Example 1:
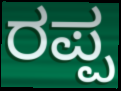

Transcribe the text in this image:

ರಪ್ಪ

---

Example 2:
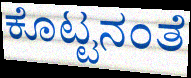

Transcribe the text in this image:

ಕೊಟ್ಟನಂತೆ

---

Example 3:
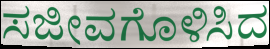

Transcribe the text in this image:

ಸಜೀವಗೊಳಿಸಿದ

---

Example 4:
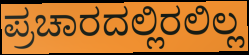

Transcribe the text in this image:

ಪ್ರಚಾರದಲ್ಲಿರಲಿಲ್ಲ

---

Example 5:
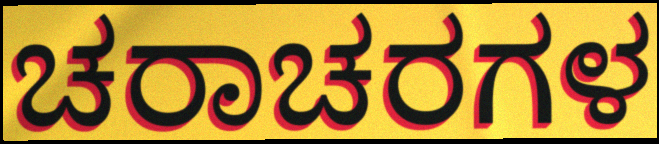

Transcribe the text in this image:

ಚರಾಚರಗಳ